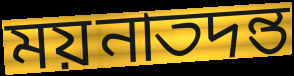
ময়নাতদন্ত